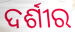
ଦର୍ଶୀର